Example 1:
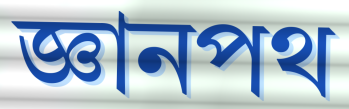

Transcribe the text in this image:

জ্ঞানপথ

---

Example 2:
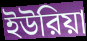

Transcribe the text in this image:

ইউরিয়া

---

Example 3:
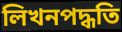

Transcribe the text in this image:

লিখনপদ্ধতি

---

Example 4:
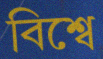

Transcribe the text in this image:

বিশ্বে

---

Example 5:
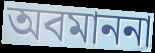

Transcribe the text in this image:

অবমাননা